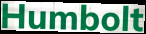
Humbolt